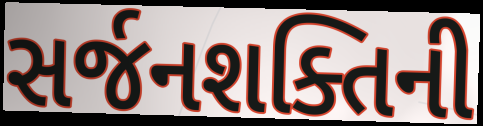
સર્જનશક્તિની